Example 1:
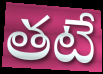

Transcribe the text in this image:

తటే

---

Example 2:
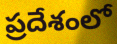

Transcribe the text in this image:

ప్రదేశంలో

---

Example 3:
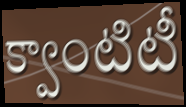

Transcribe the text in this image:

క్వాంటిటీ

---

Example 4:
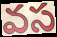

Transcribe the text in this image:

వస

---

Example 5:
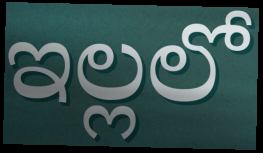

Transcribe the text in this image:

ఇల్లలో